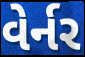
વેર્નર